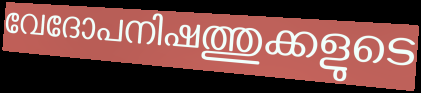
വേദോപനിഷത്തുക്കളുടെ